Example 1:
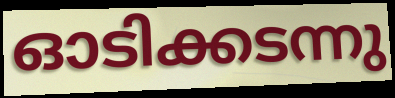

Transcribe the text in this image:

ഓടിക്കടന്നു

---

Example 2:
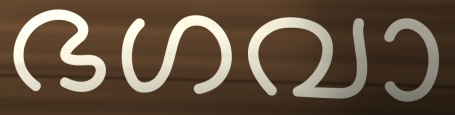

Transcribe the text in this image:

ഭഗവാ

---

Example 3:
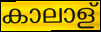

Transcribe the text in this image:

കാലാള്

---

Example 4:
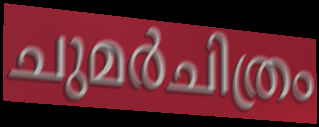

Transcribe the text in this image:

ചുമർചിത്രം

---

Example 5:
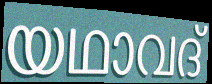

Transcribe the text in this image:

യഥാവദ്